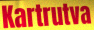
Kartrutva